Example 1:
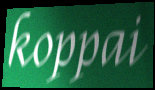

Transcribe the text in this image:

koppai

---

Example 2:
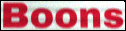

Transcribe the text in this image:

Boons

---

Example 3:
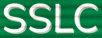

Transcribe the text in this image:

SSLC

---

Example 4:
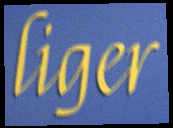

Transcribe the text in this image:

liger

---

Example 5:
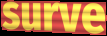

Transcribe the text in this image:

surve